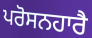
ਪਰੋਸਨਹਾਰੈ